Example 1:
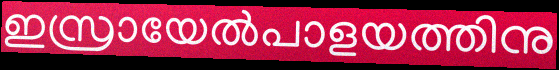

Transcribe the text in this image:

ഇസ്രായേൽപാളയത്തിനു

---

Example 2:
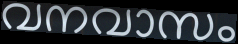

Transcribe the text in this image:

വനവാസം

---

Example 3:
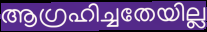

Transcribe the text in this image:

ആഗ്രഹിച്ചതേയില്ല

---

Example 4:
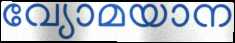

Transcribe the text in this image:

വ്യോമയാന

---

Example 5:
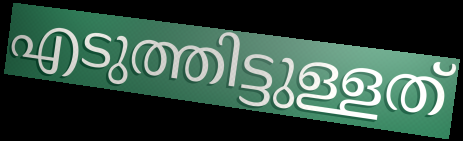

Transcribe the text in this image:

എടുത്തിട്ടുള്ളത്